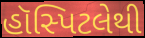
હૉસ્પિટલેથી